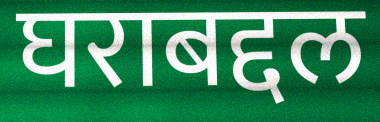
घराबद्दल